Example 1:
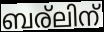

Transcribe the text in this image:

ബര്ലിന്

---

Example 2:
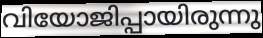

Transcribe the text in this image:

വിയോജിപ്പായിരുന്നു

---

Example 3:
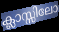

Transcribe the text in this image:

ക്ലാസ്സിലോ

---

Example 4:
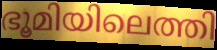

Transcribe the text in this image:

ഭൂമിയിലെത്തി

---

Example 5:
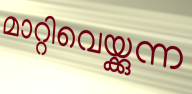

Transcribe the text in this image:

മാറ്റിവെയ്ക്കുന്ന